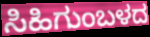
ಸಿಹಿಗುಂಬಳದ